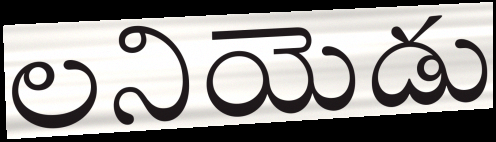
లనియెడు